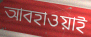
আবহাওয়াই